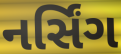
નર્સિંગ